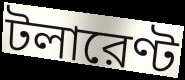
টলারেণ্ট